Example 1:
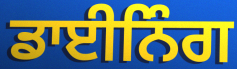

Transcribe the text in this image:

ਡਾਈਨਿੰਗ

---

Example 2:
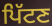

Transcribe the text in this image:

ਪਿੱਟਣ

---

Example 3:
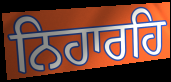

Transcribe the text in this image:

ਨਿਹਾਰਹਿ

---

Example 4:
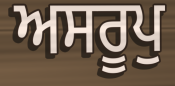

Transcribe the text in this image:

ਅਸਰੂਪੁ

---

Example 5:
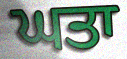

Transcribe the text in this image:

ਘਤਾ